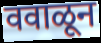
ववाळून